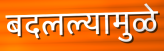
बदलल्यामुळे